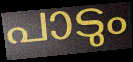
പാടും